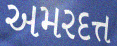
અમરદત્ત